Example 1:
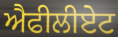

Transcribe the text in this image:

ਐਫੀਲੀਏਟ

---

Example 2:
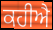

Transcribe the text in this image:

ਕਹੀਐ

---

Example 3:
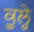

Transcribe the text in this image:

ਕੂਲ੍ਹੇ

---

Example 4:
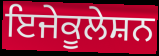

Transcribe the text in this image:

ਇਜੇਕੂਲੇਸ਼ਨ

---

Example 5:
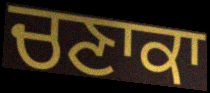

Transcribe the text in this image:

ਚਣਾਕਾ